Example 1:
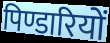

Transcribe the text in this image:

पिण्डारियों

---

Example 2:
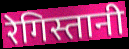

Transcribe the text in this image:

रेगिस्तानी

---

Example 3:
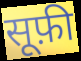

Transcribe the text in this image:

सूफ़ी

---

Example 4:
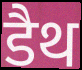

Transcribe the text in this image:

डैथ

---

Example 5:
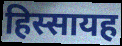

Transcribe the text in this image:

हिस्सायह